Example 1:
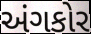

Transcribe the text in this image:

અંગકોર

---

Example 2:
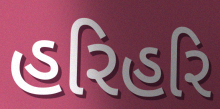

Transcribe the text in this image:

હરિહરિ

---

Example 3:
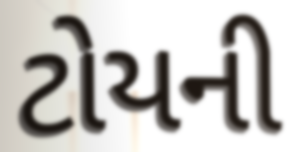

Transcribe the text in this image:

ટોયની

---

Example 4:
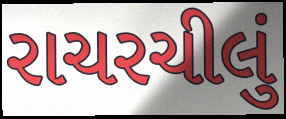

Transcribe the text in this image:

રાચરચીલું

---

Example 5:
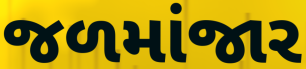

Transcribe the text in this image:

જળમાંજાર